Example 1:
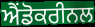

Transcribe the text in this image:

ਐਂਡੋਕਰੀਨਲ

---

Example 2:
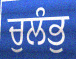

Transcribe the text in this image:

ਚੁਲੰਭੁ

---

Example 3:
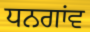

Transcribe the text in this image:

ਧਨਗਾਂਵ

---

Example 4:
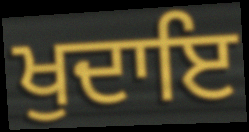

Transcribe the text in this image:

ਖੁਦਾਇ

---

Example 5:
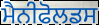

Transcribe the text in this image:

ਮੈਨੀਫੋਲਡਸ